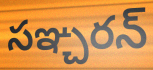
సఞ్చరన్